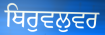
ਥਿਰੁਵਲੁਵਰ